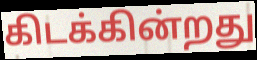
கிடக்கின்றது